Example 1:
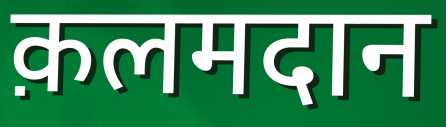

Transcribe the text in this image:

क़लमदान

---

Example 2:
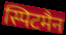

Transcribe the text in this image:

स्पिटमैन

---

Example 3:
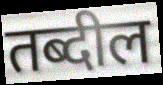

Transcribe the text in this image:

तब्दील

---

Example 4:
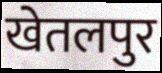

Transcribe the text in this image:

खेतलपुर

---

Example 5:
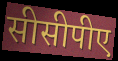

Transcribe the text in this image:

सीसीपीए